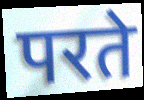
परते